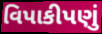
વિપાકીપણું